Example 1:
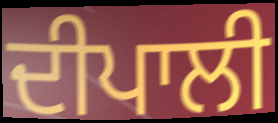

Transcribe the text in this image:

ਦੀਪਾਲੀ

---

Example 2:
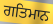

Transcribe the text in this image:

ਗਤਿਮਾਨ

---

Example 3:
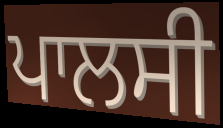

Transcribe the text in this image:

ਪਾਲਸੀ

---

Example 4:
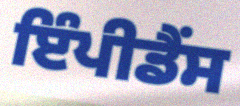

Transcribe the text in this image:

ਇੰਪੀਡੈਂਸ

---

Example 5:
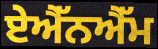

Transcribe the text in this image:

ਏਐੱਨਐੱਮ